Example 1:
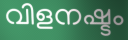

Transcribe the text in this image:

വിളനഷ്ടം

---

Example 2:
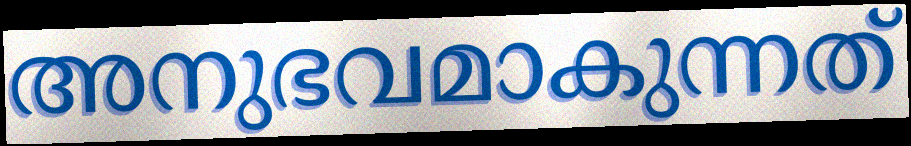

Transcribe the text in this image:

അനുഭവമാകുന്നത്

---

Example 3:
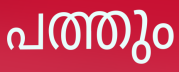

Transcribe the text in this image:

പത്തും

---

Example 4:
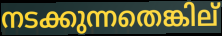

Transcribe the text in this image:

നടക്കുന്നതെങ്കില്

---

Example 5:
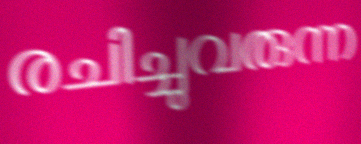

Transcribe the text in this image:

രചിച്ചുവരുന്ന